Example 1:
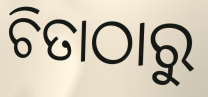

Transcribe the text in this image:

ଚିତାଠାରୁ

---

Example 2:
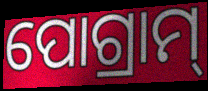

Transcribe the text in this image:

ପୋଗ୍ରାମ୍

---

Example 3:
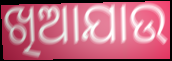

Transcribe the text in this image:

ଖିଆଯାଉ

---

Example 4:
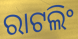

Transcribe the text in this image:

ରାଟଲିଂ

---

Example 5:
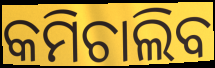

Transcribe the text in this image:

କମିଚାଲିବ